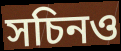
সচিনও